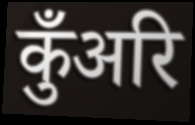
कुँअरि